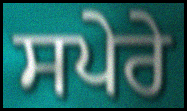
ਸਪੇਰੇ